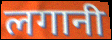
लगानी